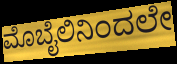
ಮೊಬೈಲಿನಿಂದಲೇ